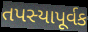
તપસ્યાપૂર્વક